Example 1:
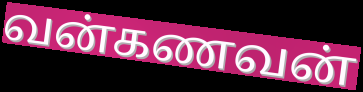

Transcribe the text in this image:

வன்கணவன்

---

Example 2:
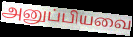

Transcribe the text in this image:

அனுப்பியவை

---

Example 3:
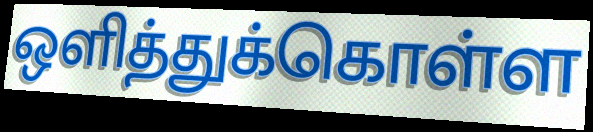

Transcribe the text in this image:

ஒளித்துக்கொள்ள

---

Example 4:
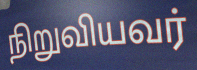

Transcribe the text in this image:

நிறுவியவர்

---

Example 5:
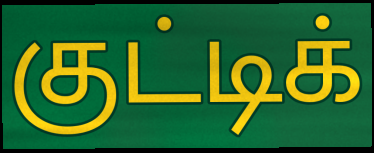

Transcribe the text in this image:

குட்டிக்